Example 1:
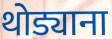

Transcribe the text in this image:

थोड्याना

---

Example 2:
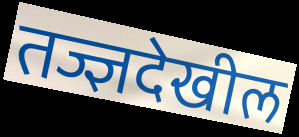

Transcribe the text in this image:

तज्ज्ञदेखील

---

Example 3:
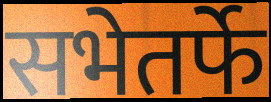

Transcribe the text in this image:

सभेतर्फे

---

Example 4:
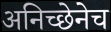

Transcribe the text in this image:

अनिच्छेनेच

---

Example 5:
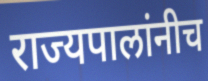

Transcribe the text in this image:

राज्यपालांनीच